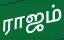
ராஜம்